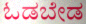
ಓಡಬೇಡ